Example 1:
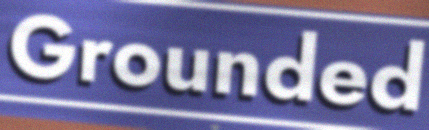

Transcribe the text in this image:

Grounded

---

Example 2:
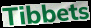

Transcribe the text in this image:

Tibbets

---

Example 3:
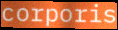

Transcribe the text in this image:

corporis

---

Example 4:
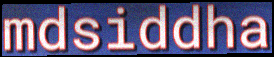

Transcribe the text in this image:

mdsiddha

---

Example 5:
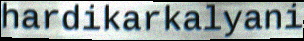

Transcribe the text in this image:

hardikarkalyani